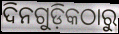
ଦିନଗୁଡ଼ିକଠାରୁ